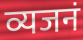
व्यजनं